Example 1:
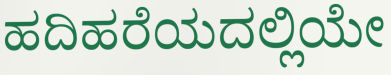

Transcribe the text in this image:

ಹದಿಹರೆಯದಲ್ಲಿಯೇ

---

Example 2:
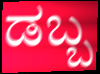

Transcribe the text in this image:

ಡಬ್ಬ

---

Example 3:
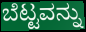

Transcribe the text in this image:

ಬೆಟ್ಟವನ್ನು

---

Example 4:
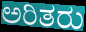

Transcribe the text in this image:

ಅರಿತರು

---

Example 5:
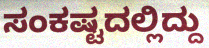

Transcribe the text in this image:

ಸಂಕಷ್ಟದಲ್ಲಿದ್ದು